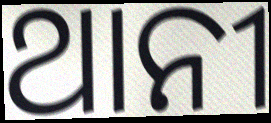
ଥାନୀ